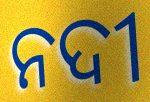
ନଦୀ